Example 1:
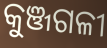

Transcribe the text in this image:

କୁଞ୍ଜଗଳୀ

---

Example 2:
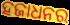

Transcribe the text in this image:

ହଜାଧନର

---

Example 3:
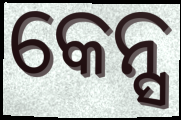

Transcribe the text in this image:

କେନ୍ସ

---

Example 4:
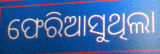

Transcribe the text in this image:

ଫେରିଆସୁଥିଲା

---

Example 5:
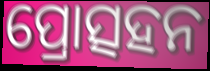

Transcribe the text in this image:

ପ୍ରୋତ୍ସହନ